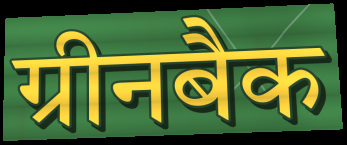
ग्रीनबैक